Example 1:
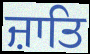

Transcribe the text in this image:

ਜ਼ਾਤਿ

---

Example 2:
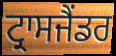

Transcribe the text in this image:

ਟ੍ਰਾਸਜੈਂਡਰ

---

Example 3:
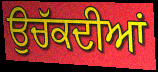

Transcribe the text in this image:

ਉਚੱਕਦੀਆਂ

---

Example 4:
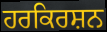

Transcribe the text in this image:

ਹਰਕਿਰਸ਼ਨ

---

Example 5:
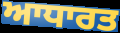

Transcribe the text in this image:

ਆਧਾਰਤ